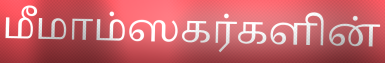
மீமாம்ஸகர்களின்